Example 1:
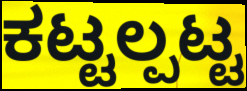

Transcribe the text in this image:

ಕಟ್ಟಲ್ಪಟ್ಟ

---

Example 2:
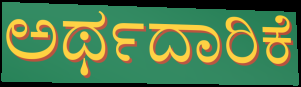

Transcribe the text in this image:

ಅರ್ಥದಾರಿಕೆ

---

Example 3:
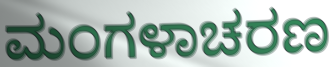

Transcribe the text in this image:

ಮಂಗಳಾಚರಣ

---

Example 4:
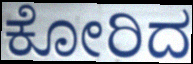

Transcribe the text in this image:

ಕೋರಿದ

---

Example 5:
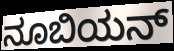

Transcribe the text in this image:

ನೂಬಿಯನ್